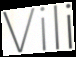
Vili